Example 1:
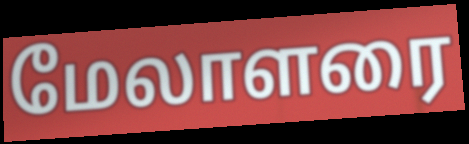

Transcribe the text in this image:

மேலாளரை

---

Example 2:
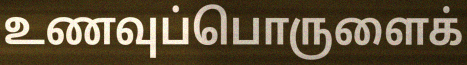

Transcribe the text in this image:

உணவுப்பொருளைக்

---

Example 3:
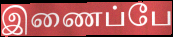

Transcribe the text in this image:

இணைப்பே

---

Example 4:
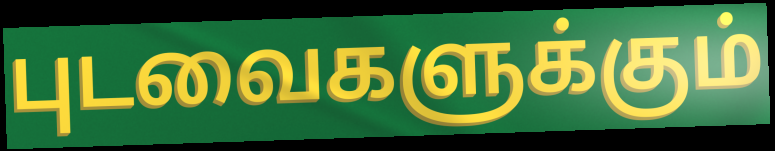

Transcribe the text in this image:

புடவைகளுக்கும்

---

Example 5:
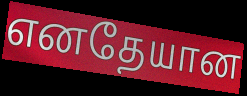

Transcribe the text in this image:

எனதேயான